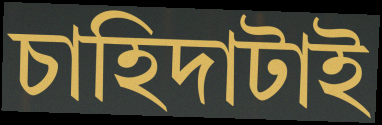
চাহিদাটাই